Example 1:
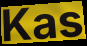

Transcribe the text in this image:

Kas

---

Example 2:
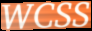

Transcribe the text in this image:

WCSS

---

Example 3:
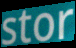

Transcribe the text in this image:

stor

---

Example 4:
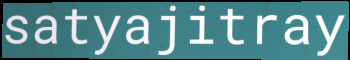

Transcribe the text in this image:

satyajitray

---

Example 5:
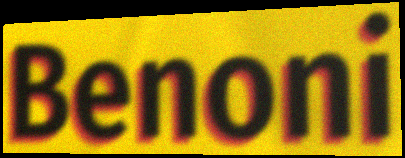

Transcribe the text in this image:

Benoni